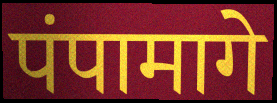
पंपामागे